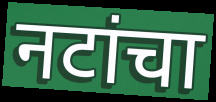
नटांचा